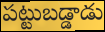
పట్టుబడ్డాడు